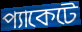
প্যাকেটে